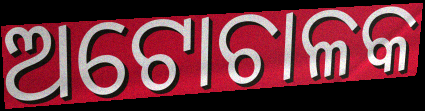
ଅଟୋଚାଳକ